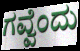
ಗವ್ವೆಂದು